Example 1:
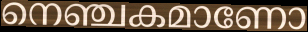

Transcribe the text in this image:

നെഞ്ചകമാണോ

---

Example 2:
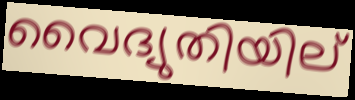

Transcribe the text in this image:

വൈദ്യുതിയില്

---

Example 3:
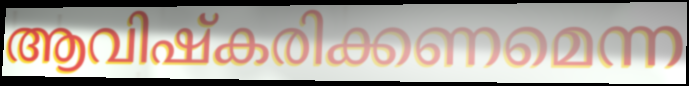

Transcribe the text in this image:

ആവിഷ്കരിക്കണമെന്ന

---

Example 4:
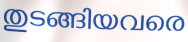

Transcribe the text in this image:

തുടങ്ങിയവരെ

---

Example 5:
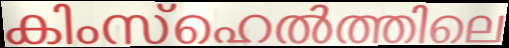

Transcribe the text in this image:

കിംസ്ഹെൽത്തിലെ